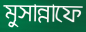
মুসান্নাফে